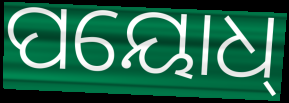
ପୟୋଧ୍